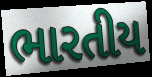
ભારતીય